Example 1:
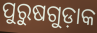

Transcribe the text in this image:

ପୁରୁଷଗୁଡ଼ାକ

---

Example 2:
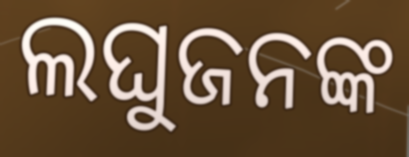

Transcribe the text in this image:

ଲଘୁଜନଙ୍କ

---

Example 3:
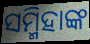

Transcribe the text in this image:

ସମ୍ମିହାଙ୍କ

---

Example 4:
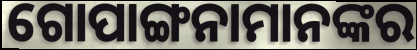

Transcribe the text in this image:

ଗୋପାଙ୍ଗନାମାନଙ୍କର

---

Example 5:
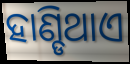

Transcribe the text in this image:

ହାଣ୍ଡିଥାଏ